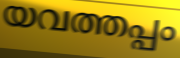
യവത്തപ്പം